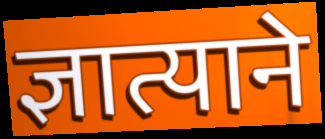
ज्ञात्याने